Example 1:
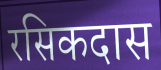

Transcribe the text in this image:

रसिकदास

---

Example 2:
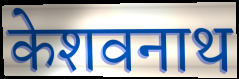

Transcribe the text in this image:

केशवनाथ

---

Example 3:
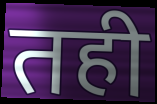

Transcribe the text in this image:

तही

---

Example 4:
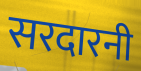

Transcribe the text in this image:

सरदारनी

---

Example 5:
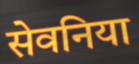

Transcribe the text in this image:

सेवनिया